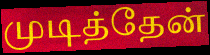
முடித்தேன்